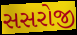
સસરોજી